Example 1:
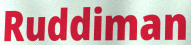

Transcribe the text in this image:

Ruddiman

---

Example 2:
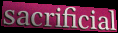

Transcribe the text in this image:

sacrificial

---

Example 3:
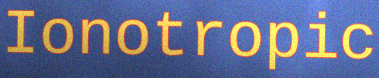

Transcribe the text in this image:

Ionotropic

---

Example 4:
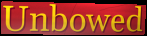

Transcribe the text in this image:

Unbowed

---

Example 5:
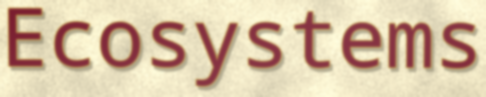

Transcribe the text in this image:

Ecosystems